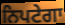
ਨਿਪਟੇਗਾ